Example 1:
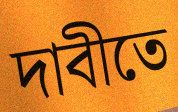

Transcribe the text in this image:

দাবীতে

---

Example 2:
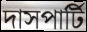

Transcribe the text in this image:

দাসপার্টি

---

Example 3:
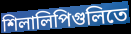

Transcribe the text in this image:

শিলালিপিগুলিতে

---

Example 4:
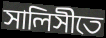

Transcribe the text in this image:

সালিসীতে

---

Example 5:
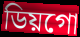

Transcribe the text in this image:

ডিয়গো